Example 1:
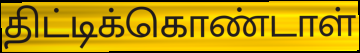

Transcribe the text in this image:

திட்டிக்கொண்டாள்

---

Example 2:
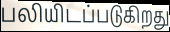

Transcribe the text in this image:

பலியிடப்படுகிறது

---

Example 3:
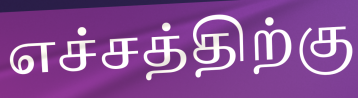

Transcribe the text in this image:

எச்சத்திற்கு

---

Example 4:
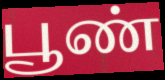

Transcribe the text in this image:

பூண்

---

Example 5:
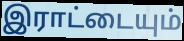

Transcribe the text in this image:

இராட்டையும்